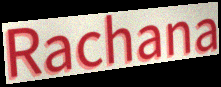
Rachana